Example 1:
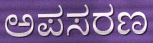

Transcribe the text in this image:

ಅಪಸರಣ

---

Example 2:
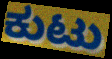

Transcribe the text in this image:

ಕುಟು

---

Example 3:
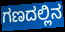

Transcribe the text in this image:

ಗಣದಲ್ಲಿನ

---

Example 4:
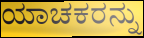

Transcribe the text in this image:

ಯಾಚಕರನ್ನು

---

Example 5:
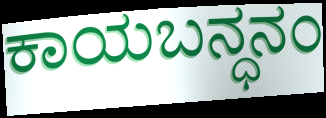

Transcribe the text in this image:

ಕಾಯಬನ್ಧನಂ